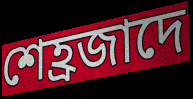
শেহ্রজাদে